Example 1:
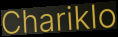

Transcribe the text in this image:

Chariklo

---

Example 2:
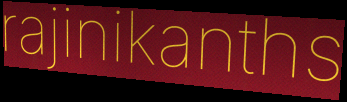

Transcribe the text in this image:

rajinikanths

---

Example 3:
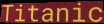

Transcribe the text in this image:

Titanic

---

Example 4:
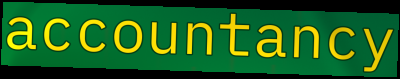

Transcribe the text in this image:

accountancy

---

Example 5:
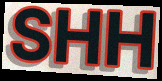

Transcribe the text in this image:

SHH